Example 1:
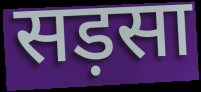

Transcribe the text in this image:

सड़सा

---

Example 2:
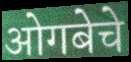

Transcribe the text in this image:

ओगबेचे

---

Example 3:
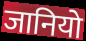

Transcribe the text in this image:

जानियो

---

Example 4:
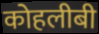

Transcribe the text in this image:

कोहलीबी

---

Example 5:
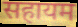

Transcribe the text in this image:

सहायम